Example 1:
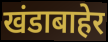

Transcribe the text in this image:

खंडाबाहेर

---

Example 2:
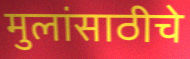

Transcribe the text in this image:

मुलांसाठीचे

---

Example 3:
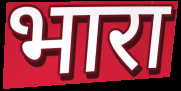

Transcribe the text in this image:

भारा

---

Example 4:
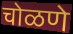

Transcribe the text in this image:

चोळणे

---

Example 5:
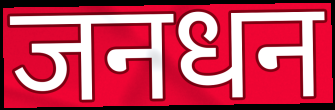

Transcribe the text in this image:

जनधन